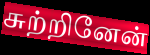
சுற்றினேன்